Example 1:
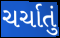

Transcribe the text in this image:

ચર્ચાતું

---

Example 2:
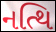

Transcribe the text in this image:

નત્થિ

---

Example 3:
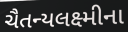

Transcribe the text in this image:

ચૈતન્યલક્ષ્મીના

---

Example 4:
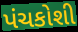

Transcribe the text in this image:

પંચકોશી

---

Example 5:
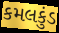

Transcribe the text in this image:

કમલકુંડ